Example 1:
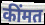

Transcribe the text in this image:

कींमत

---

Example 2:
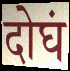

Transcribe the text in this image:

दोघं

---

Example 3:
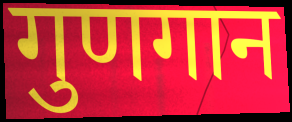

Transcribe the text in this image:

गुणगान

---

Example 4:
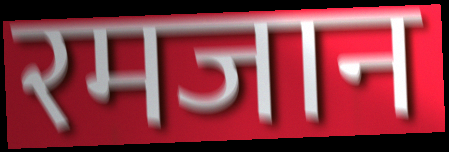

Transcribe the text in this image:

रमजान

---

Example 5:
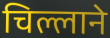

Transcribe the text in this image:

चिल्लाने